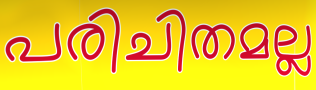
പരിചിതമല്ല